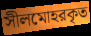
সীলমোহরকৃত